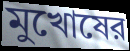
মুখোষের